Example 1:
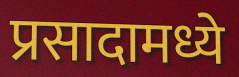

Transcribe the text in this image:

प्रसादामध्ये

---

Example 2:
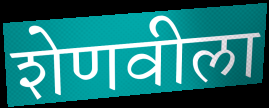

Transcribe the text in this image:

शेणवीला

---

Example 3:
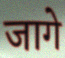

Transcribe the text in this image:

जागे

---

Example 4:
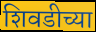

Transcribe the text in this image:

शिवडीच्या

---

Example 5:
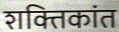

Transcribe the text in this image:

शक्तिकांत